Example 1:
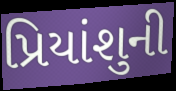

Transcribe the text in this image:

પ્રિયાંશુની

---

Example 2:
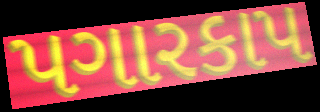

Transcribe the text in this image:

પગારકાપ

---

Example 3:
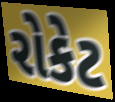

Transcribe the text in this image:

રોકેટ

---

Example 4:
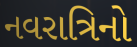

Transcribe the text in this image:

નવરાત્રિનો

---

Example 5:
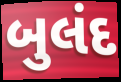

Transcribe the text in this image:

બુલંદ